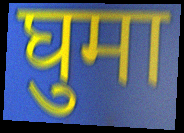
घुमा